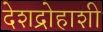
देशद्रोहाशी